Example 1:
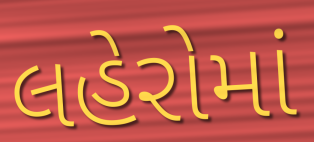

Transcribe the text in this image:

લહેરોમાં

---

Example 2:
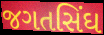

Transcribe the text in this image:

જગતસિંઘ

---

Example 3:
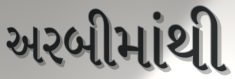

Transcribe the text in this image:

અરબીમાંથી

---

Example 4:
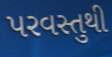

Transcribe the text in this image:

પરવસ્તુથી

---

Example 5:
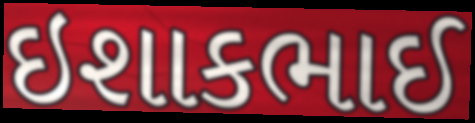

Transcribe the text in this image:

ઇશાકભાઈ